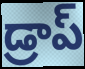
డ్రాప్